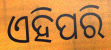
ଏହିପରି